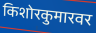
किशोरकुमारवर